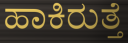
ಹಾಕಿರುತ್ತೆ